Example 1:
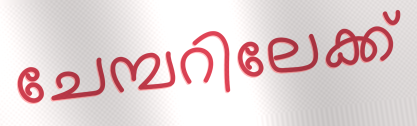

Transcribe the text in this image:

ചേമ്പറിലേക്ക്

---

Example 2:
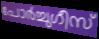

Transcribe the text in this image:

പോർച്ചുഗീസ്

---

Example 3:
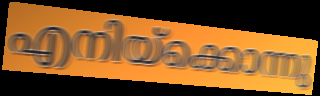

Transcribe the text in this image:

എനിയ്ക്കൊന്നു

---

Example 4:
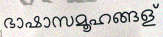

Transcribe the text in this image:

ഭാഷാസമൂഹങ്ങള്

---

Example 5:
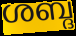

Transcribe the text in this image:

ശബ്ദ